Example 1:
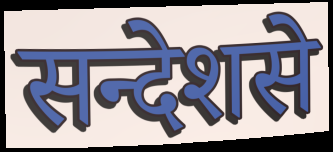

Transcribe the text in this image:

सन्देशसे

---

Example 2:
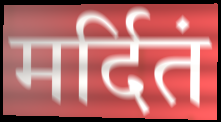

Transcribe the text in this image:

मर्दितं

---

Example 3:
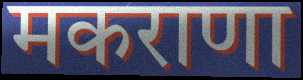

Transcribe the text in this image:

मकराणा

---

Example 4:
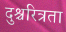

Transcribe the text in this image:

दुश्चरित्रता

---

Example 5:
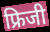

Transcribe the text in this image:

फ्रिजी